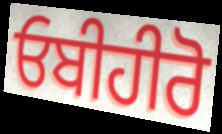
ਓਬੀਹੀਰੋ